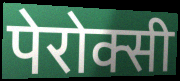
पेरोक्सी